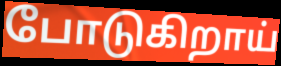
போடுகிறாய்